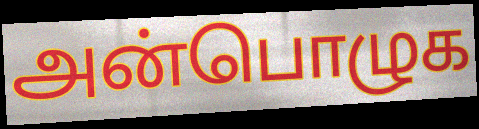
அன்பொழுக